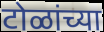
टोळांच्या